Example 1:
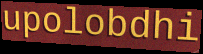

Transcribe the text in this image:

upolobdhi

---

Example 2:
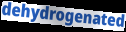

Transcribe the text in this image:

dehydrogenated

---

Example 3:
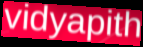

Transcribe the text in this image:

vidyapith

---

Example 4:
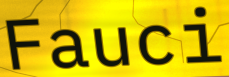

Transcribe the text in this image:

Fauci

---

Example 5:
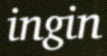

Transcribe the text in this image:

ingin